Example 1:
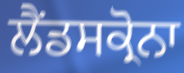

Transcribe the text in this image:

ਲੈਂਡਸਕ੍ਰੋਨਾ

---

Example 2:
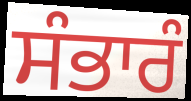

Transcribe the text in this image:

ਸੰਭਾਰੰ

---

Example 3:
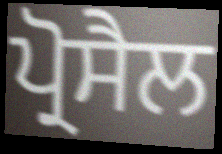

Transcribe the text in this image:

ਪ੍ਰੋਸੈਲ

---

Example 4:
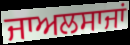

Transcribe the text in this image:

ਜਾਅਲਸਾਜਾਂ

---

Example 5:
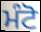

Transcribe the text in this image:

ਮੰਟੋ